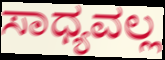
ಸಾಧ್ಯವಲ್ಲ